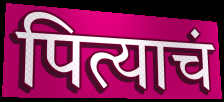
पित्याचं